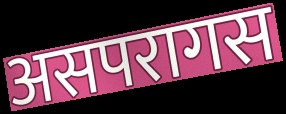
असपरागस